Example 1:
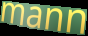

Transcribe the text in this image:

mann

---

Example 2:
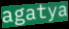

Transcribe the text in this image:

agatya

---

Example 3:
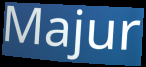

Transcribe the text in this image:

Majur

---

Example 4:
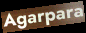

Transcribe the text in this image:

Agarpara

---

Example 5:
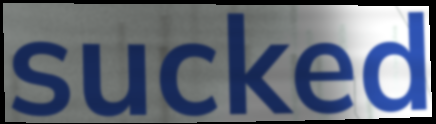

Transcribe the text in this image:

sucked